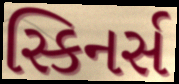
સ્કિનર્સ